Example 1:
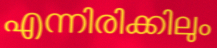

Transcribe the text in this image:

എന്നിരിക്കിലും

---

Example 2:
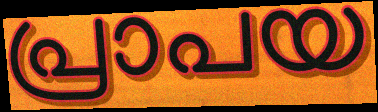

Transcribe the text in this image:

പ്രാപയ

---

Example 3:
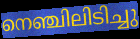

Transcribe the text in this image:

നെഞ്ചിലിടിച്ചു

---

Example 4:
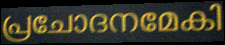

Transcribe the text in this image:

പ്രചോദനമേകി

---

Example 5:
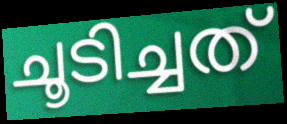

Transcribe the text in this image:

ചൂടിച്ചത്